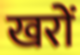
खरों